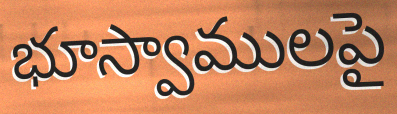
భూస్వాములపై